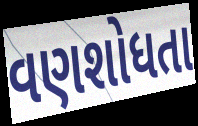
વણશોધતા